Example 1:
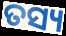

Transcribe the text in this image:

ତସ୍ୟ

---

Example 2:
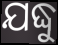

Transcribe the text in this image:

ଯଦ୍ଧୁ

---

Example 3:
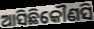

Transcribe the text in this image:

ଆସିଛିକୌଣସି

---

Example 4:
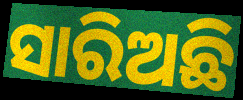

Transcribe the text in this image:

ସାରିଅଛି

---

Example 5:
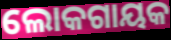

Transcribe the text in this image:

ଲୋକଗାୟକ